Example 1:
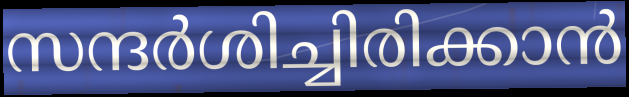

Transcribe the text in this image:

സന്ദർശിച്ചിരിക്കാൻ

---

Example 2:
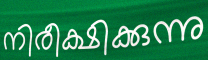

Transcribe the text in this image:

നിരീക്ഷിക്കുന്നു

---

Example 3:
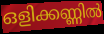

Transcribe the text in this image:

ഒളിക്കണ്ണിൽ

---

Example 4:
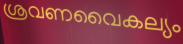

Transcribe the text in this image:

ശ്രവണവൈകല്യം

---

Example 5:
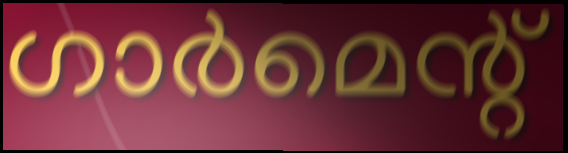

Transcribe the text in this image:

ഗാർമെന്റ്